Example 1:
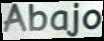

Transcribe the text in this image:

Abajo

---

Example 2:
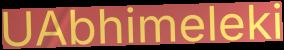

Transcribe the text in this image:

UAbhimeleki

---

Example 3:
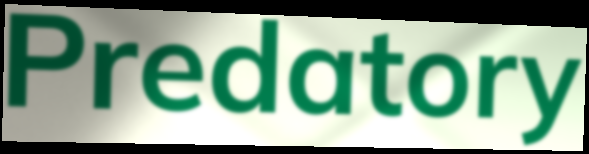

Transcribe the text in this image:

Predatory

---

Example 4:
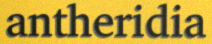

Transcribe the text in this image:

antheridia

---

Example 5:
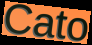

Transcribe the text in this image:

Cato